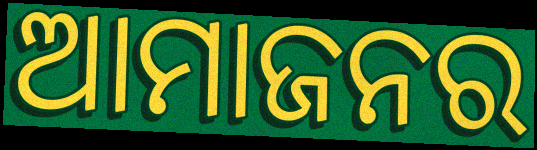
ଆମାଜନର